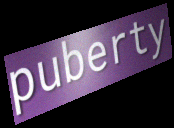
puberty